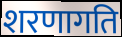
शरणागति